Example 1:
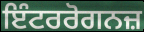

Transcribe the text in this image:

ਇੰਟਰਰੋਗਨਜ਼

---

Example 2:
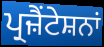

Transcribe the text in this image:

ਪ੍ਰਜ਼ੈਂਟੇਸ਼ਨਾਂ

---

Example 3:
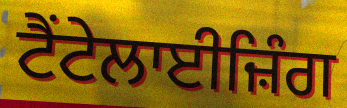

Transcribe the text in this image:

ਟੈਂਟੇਲਾਈਜ਼ਿੰਗ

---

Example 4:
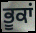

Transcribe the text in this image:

ਭੂਕਾਂ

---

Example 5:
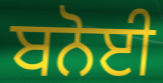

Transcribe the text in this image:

ਬਨੋਈ